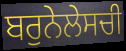
ਬਰੁਨੇਲੇਸਚੀ